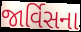
જાર્વિસના